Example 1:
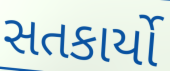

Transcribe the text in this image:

સતકાર્યો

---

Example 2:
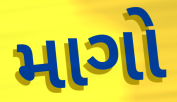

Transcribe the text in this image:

માગો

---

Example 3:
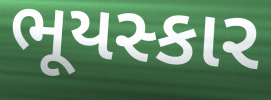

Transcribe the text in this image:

ભૂયસ્કાર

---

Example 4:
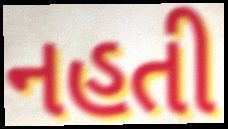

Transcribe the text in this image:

નહતી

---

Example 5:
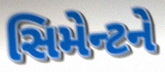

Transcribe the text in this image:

સિમેન્ટને